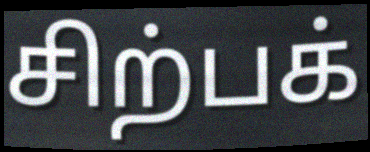
சிற்பக்